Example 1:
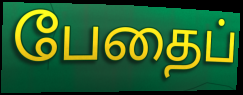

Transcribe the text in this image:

பேதைப்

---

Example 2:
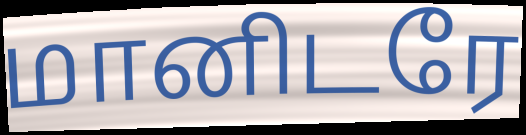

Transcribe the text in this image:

மானிடரே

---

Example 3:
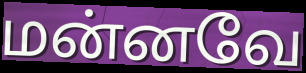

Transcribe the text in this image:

மன்னவே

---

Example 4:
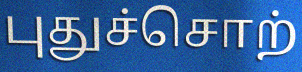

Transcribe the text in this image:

புதுச்சொற்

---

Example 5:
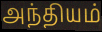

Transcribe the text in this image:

அந்தியம்